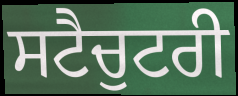
ਸਟੈਚੁਟਰੀ